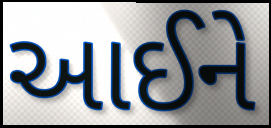
આઈને